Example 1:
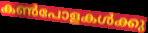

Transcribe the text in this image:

കൺപോളകൾക്കു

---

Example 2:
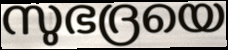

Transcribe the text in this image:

സുഭദ്രയെ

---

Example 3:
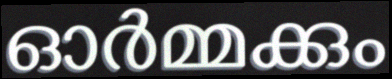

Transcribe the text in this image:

ഓർമ്മക്കും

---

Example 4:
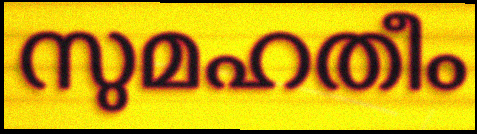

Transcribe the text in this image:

സുമഹതീം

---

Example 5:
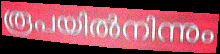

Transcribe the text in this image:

രൂപയിൽനിന്നും